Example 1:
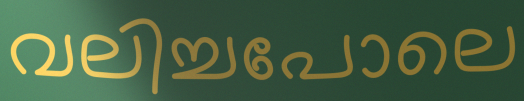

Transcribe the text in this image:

വലിച്ചപോലെ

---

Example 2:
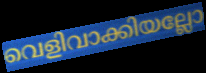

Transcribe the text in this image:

വെളിവാക്കിയല്ലോ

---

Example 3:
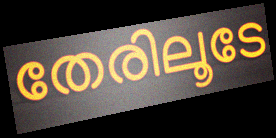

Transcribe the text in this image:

തേരിലൂടേ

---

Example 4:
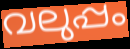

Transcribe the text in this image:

വലുപ്പം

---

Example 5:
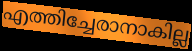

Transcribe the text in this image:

എത്തിച്ചേരാനാകില്ല